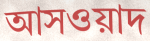
আসওয়াদ